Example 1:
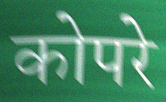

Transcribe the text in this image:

कोपरे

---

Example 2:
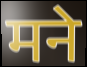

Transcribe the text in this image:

मने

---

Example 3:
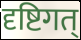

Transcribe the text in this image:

दृष्टिगत्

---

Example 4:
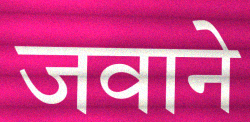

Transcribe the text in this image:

जवाने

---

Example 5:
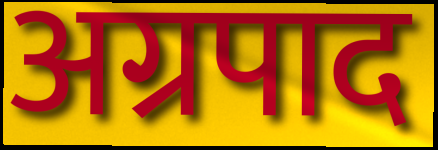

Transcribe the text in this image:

अग्रपाद